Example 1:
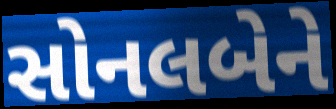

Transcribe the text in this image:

સોનલબેને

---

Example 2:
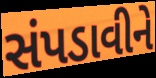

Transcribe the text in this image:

સંપડાવીને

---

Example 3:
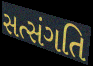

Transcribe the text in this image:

સત્સંગતિ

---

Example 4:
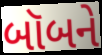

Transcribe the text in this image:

બૉબને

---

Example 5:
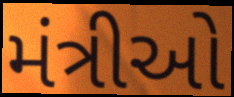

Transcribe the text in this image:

મંત્રીઓ